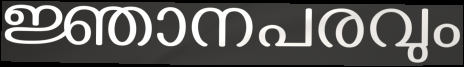
ജ്ഞാനപരവും